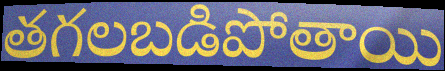
తగలబడిపోతాయి